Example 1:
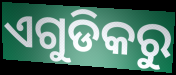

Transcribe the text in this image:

ଏଗୁଡିକରୁ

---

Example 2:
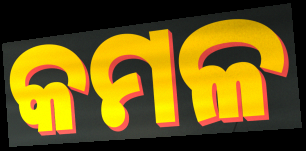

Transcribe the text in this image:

କମଳ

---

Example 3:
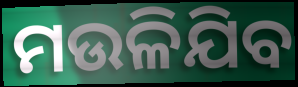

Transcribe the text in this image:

ମଉଳିଯିବ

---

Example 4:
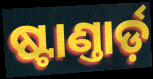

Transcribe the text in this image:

ଷ୍ଟାଣ୍ତାର୍ଡ଼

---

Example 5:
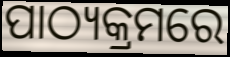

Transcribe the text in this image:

ପାଠ୍ୟକ୍ରମରେ